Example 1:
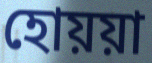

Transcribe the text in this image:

হোয়য়া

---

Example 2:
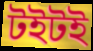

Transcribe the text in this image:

টইটই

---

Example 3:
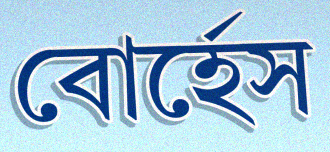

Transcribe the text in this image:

বোর্হেস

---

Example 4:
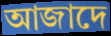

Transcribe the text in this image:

আজাদে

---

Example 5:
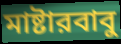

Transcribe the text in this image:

মাষ্টারবাবু